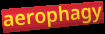
aerophagy